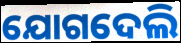
ଯୋଗଦେଲି